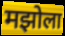
मझोला